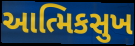
આત્મિકસુખ